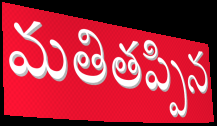
మతితప్పిన